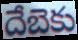
దేబెకు